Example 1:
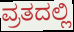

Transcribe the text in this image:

ವ್ರತದಲ್ಲಿ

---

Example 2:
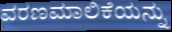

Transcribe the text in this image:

ವರಣಮಾಲಿಕೆಯನ್ನು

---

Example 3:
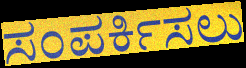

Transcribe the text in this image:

ಸಂಪರ್ಕಿಸಲು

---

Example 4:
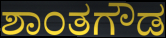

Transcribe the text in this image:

ಶಾಂತಗೌಡ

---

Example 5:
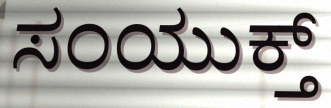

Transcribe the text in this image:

ಸಂಯುಕ್ತ್